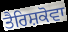
ਤੈਰਿਸ਼ਕੋਵਾ